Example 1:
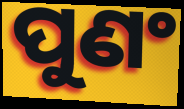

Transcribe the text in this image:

ପୁଣଂ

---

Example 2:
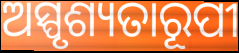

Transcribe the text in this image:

ଅସ୍ପୃଶ୍ୟତାରୂପୀ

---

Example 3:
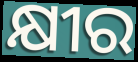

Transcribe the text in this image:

କ୍ଷୀର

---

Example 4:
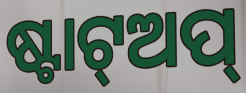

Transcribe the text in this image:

ଷ୍ଟାଟ୍ଅପ୍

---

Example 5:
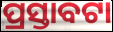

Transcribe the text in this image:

ପ୍ରସ୍ତାବଟା